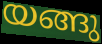
യങ്ങു